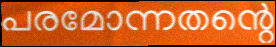
പരമോന്നതന്റെ